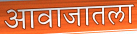
आवाजातला